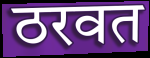
ठरवत